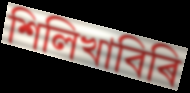
শিলিখাবিৰি